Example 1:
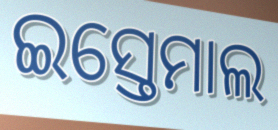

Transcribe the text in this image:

ଇସ୍ତେମାଲ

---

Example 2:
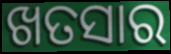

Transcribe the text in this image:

ଖତସାର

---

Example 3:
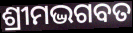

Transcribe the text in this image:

ଶ୍ରୀମଦ୍ଭଗବତ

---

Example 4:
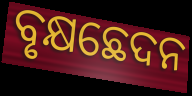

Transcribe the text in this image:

ବୃକ୍ଷଛେଦନ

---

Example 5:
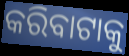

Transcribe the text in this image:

କରିବାଟାକୁ